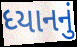
ધ્યાનનું